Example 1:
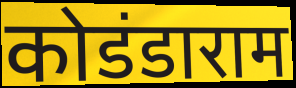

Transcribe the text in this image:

कोडंडाराम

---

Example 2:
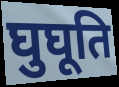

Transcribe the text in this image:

घुघूति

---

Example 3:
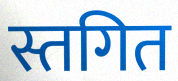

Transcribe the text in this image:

स्तगित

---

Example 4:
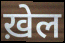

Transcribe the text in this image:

ख़ेल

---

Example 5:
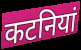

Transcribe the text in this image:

कटनियां